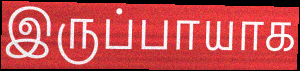
இருப்பாயாக